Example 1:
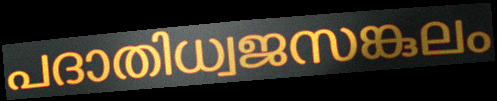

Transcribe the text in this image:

പദാതിധ്വജസങ്കുലം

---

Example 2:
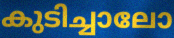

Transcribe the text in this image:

കുടിച്ചാലോ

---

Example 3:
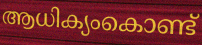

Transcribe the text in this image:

ആധിക്യംകൊണ്ട്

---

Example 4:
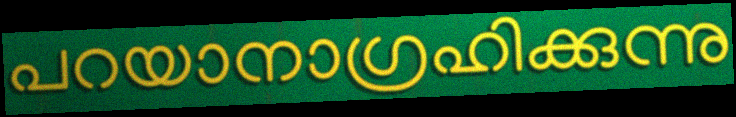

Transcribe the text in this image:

പറയാനാഗ്രഹിക്കുന്നു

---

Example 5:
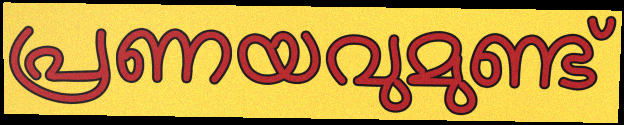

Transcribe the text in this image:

പ്രണയവുമുണ്ട്